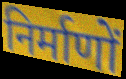
निर्माणों